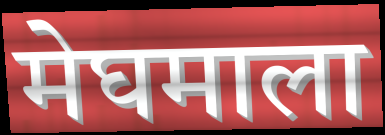
मेघमाला